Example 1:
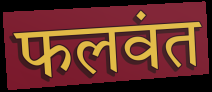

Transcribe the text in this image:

फलवंत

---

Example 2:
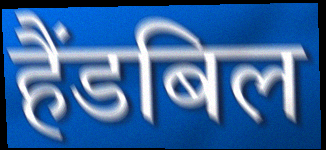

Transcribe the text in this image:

हैंडबिल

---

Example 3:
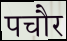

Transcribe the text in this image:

पचौर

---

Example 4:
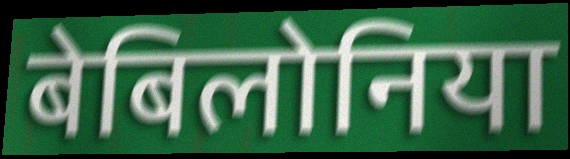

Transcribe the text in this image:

बेबिलोनिया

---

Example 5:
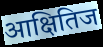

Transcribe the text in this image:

आक्षितिज